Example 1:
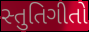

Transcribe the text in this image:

સ્તુતિગીતો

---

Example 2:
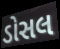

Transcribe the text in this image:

ડોસલ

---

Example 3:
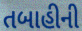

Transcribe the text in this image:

તબાહીની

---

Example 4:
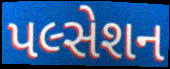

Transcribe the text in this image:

પલ્સેશન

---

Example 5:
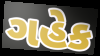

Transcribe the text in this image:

ગહેક